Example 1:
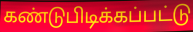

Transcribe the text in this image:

கண்டுபிடிக்கப்பட்டு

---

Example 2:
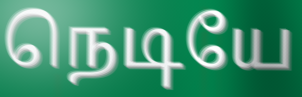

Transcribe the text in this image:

நெடியே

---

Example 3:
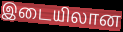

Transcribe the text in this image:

இடையிலான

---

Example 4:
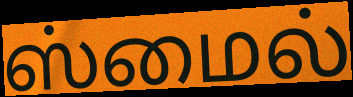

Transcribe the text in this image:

ஸ்மைல்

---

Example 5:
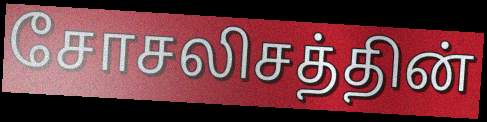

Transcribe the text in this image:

சோசலிசத்தின்